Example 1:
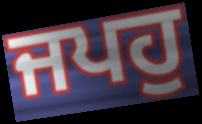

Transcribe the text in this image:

ਜਪਹੁ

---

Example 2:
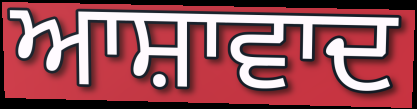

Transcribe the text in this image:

ਆਸ਼ਾਵਾਦ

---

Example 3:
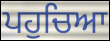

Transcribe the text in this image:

ਪਹੁਚਿਆ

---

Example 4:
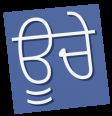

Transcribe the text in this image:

ਊਚੇ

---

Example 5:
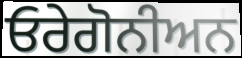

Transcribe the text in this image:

ਓਰੇਗੋਨੀਅਨ